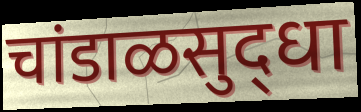
चांडाळसुद्धा